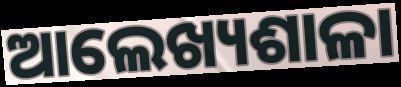
ଆଲେଖ୍ୟଶାଳା